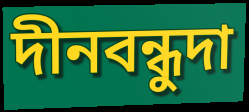
দীনবন্ধুদা